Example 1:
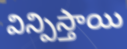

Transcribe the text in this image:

విన్పిస్తాయి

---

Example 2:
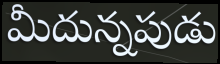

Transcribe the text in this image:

మీదున్నపుడు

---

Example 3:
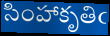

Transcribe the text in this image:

సింహాకృతిఁ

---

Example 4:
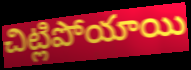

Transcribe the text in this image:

చిట్లిపోయాయి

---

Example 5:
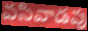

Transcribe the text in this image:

వసివాడవు